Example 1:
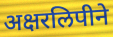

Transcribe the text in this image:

अक्षरलिपीने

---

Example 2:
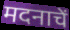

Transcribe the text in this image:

मदनाचें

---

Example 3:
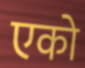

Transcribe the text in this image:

एको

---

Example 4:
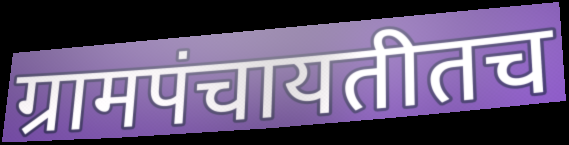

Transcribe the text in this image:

ग्रामपंचायतीतच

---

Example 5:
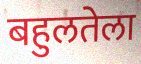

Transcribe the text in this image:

बहुलतेला